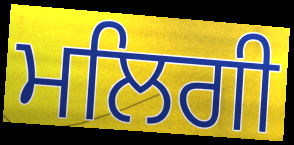
ਮਲਿਗੀ